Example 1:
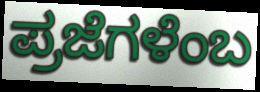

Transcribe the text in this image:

ಪ್ರಜೆಗಳೆಂಬ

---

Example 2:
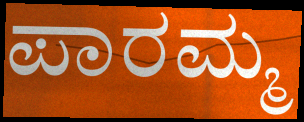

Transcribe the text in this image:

ಪಾರಮ್ಮ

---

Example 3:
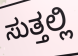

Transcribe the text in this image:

ಸುತ್ತಲ್ಲಿ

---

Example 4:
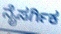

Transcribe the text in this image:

ನೈಸರ್ಗಿಕ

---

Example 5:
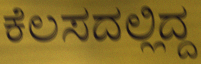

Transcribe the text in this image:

ಕೆಲಸದಲ್ಲಿದ್ದ